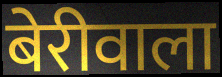
बेरीवाला